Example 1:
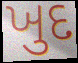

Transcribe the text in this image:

ખુદ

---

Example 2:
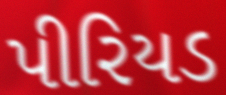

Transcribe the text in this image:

પીરિયડ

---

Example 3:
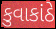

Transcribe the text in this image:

કુવાકાંઠે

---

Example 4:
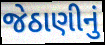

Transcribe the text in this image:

જેઠાણીનું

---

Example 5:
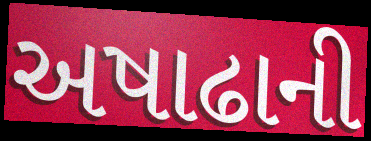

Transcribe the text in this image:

અષાઢાની